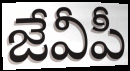
జేవీపీ